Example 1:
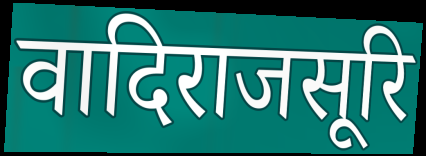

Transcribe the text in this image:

वादिराजसूरि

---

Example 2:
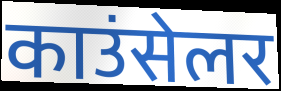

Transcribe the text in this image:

काउंसेलर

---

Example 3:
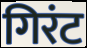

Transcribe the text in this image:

गिरंट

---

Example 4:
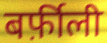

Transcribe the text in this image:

बर्फ़ीली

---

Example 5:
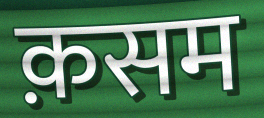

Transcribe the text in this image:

क़सम